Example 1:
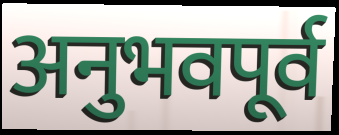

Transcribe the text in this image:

अनुभवपूर्व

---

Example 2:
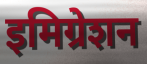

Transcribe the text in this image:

इमिग्रेशन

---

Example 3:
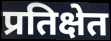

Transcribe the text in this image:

प्रतिक्षेत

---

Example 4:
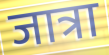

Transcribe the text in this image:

जात्रा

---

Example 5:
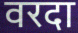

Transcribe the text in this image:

वरदा